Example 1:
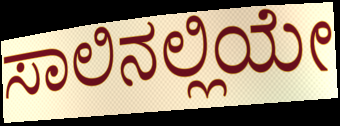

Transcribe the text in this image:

ಸಾಲಿನಲ್ಲಿಯೇ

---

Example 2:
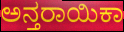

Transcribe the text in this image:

ಅನ್ತರಾಯಿಕಾ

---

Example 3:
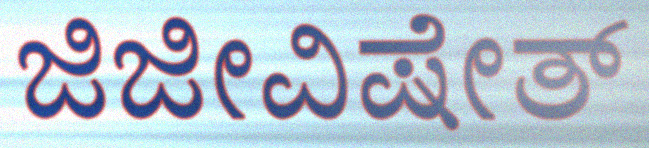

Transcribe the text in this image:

ಜಿಜೀವಿಷೇತ್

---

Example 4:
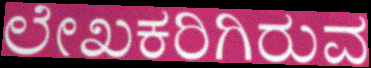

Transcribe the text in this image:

ಲೇಖಕರಿಗಿರುವ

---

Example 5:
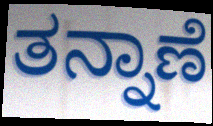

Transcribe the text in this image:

ತನ್ನಾಣೆ